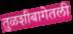
तुळशीबागेतली